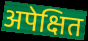
अपेक्षित